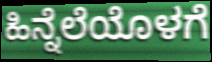
ಹಿನ್ನೆಲೆಯೊಳಗೆ